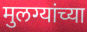
मुलग्यांच्या